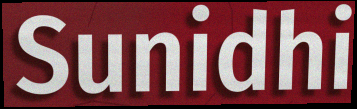
Sunidhi